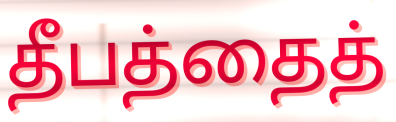
தீபத்தைத்